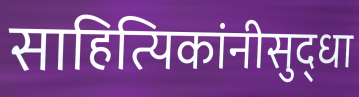
साहित्यिकांनीसुद्धा